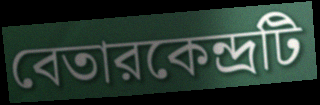
বেতারকেন্দ্রটি